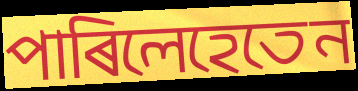
পাৰিলেহেতেন